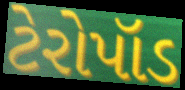
ટેરોપૉડ